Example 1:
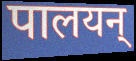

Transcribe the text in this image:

पालयन्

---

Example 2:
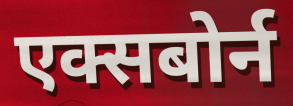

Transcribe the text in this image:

एक्सबोर्न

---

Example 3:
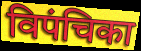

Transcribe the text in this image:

विपंचिका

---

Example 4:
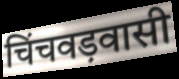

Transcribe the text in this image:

चिंचवड़वासी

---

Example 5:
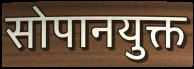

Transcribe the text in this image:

सोपानयुक्त